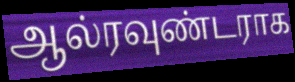
ஆல்ரவுண்டராக